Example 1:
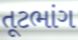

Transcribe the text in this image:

તૂટભાંગ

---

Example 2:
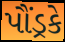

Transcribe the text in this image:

પૌંડ્રકે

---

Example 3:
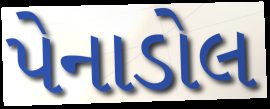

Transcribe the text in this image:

પેનાડોલ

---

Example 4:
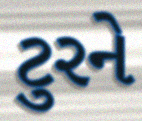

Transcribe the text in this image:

ટુરને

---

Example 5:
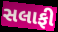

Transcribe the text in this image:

સલાફી